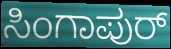
ಸಿಂಗಾಪುರ್